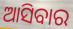
ଆସିବାର